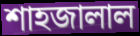
শাহজালাল